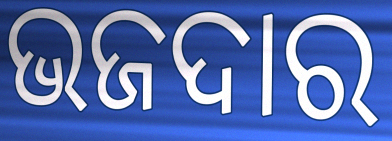
ଭଜଦାର